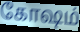
கோஷம்